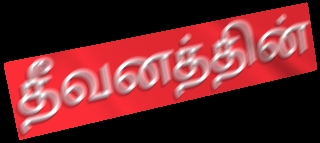
தீவனத்தின்